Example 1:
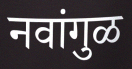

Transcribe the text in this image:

नवांगुळ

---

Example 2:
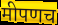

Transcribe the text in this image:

मीपणच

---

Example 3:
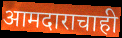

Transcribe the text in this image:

आमदाराचाही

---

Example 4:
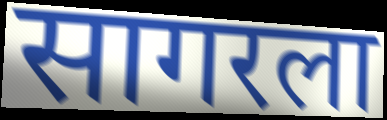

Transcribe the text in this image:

सागरला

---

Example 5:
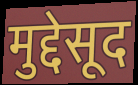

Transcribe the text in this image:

मुद्देसूद